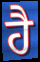
ਹੈ